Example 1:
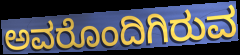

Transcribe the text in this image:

ಅವರೊಂದಿಗಿರುವ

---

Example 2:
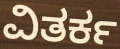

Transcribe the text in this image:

ವಿತರ್ಕ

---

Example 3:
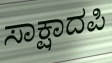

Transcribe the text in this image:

ಸಾಕ್ಷಾದಪಿ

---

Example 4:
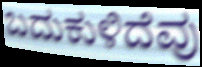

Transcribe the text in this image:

ಬದುಕುಳಿದೆವು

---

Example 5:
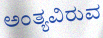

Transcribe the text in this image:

ಅಂತ್ಯವಿರುವ